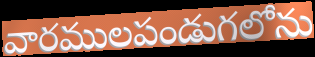
వారములపండుగలోను